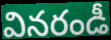
వినరండీ